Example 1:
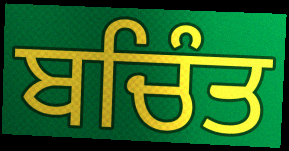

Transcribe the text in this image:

ਬਚਿੰਤ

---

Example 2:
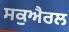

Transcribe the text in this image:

ਸਕੁਐਰਲ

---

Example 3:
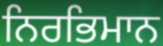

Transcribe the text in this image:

ਨਿਰਭਿਮਾਨ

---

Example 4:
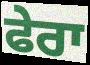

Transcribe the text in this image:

ਫੇਰਾ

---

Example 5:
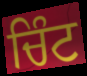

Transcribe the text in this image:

ਚਿੰਟ